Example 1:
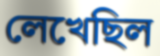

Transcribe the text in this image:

লেখেছিল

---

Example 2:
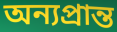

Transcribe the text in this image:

অন্যপ্রান্ত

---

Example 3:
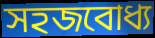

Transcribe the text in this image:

সহজবোধ্য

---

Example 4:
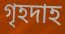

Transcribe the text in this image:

গৃহদাহ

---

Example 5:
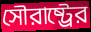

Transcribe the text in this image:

সৌরাষ্ট্রের